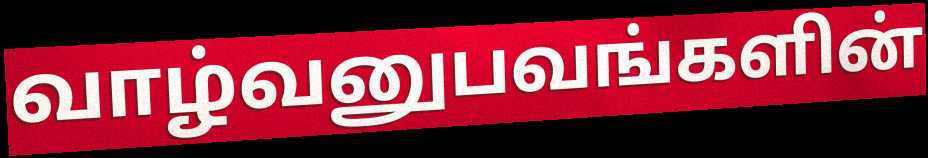
வாழ்வனுபவங்களின்